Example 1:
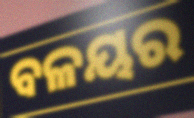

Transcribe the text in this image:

ବଳୟର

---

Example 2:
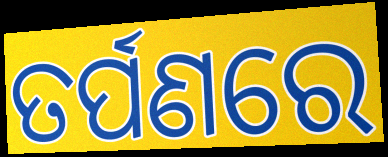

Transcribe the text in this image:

ତର୍ପଣରେ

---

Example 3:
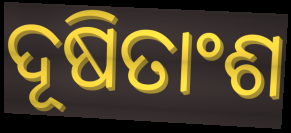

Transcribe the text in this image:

ଦୂଷିତାଂଶ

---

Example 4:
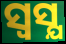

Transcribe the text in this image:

ସ୍ଵସ୍ଯ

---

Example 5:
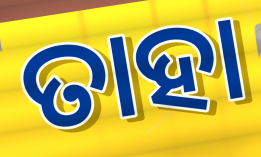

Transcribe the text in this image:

ତାହା